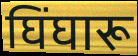
घिंघारू